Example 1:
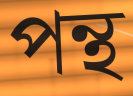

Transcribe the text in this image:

পন্থ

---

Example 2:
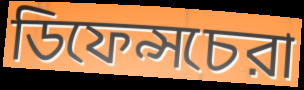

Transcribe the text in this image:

ডিফেন্সচেরা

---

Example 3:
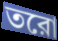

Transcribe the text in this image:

তরো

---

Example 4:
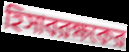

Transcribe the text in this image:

হিসাবরক্ষকের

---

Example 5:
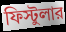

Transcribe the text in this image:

ফিস্টুলার